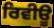
ਰਿਵੀਊ